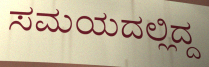
ಸಮಯದಲ್ಲಿದ್ದ